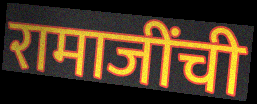
रामाजींची